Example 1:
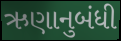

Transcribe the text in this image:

ઋણાનુબંધી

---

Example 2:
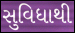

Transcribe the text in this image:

સુવિધાથી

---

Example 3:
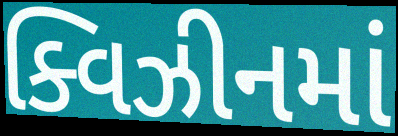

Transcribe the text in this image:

ક્વિઝીનમાં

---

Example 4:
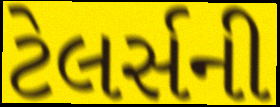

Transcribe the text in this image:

ટેલર્સની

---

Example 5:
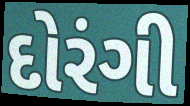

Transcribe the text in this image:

દોરંગી